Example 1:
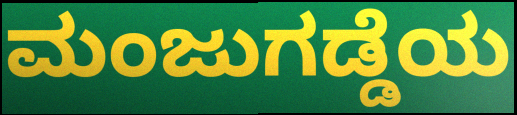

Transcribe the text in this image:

ಮಂಜುಗಡ್ಡೆಯ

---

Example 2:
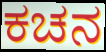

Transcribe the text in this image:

ಕಚನ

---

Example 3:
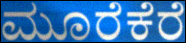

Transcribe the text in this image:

ಮೂರೆಕೆರೆ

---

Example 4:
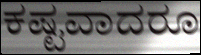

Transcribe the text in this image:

ಕಷ್ಟವಾದರೂ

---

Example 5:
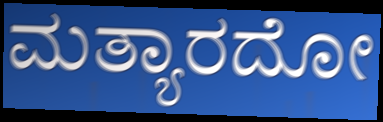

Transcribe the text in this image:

ಮತ್ಯಾರದೋ